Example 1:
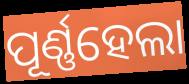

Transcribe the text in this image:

ପୂର୍ଣ୍ଣହେଲା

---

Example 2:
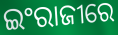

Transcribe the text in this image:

ଇଂରାଜୀରେ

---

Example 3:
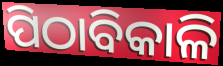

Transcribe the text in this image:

ପିଠାବିକାଳି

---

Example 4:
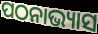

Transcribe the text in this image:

ପଠନାଭ୍ୟାସ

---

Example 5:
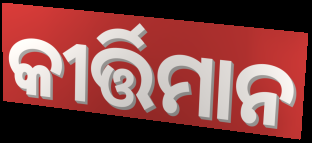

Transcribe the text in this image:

କୀର୍ତ୍ତିମାନ